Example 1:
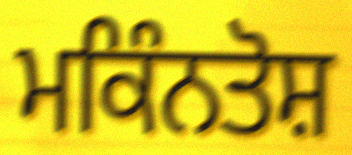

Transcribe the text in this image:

ਮਕਿੰਨਤੋਸ਼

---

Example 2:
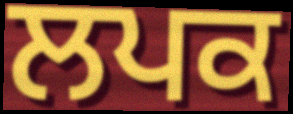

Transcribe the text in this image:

ਲਪਕ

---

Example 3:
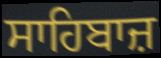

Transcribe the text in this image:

ਸਾਹਿਬਾਜ਼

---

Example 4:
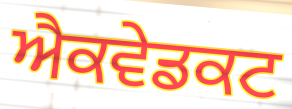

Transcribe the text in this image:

ਐਕਵੇਡਕਟ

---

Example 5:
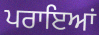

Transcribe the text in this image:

ਪਰਾਇਆਂ